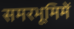
समरभूमिमें